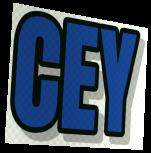
CEY